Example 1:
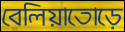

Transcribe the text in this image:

বেলিয়াতোড়ে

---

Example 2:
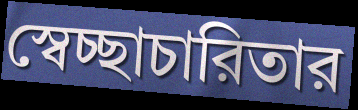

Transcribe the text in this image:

স্বেচ্ছাচারিতার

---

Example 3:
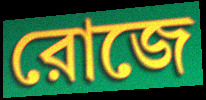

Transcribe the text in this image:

রোজে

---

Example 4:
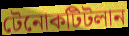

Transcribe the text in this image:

টেনোকটিটলান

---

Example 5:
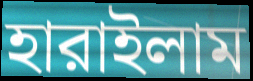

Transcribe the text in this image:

হারাইলাম